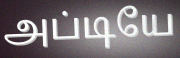
அப்டியே